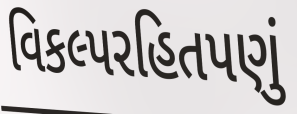
વિકલ્પરહિતપણું